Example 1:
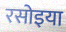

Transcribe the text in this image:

रसोइया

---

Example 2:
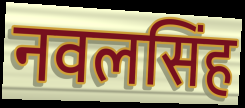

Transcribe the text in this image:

नवलसिंह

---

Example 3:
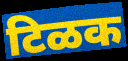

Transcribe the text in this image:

टिळक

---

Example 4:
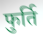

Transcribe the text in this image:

फुर्ति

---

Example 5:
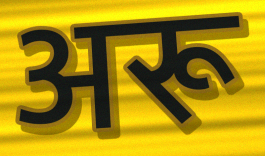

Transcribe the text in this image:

अरू